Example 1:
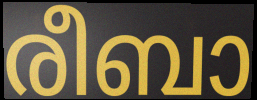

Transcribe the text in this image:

രീബാ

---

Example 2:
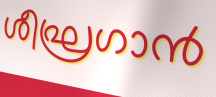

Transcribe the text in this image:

ശീഘ്രഗാൻ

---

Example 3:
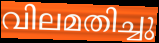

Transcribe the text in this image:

വിലമതിച്ചു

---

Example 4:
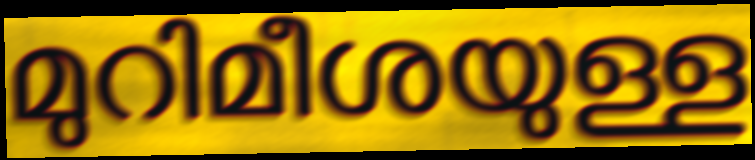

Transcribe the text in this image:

മുറിമീശയുള്ള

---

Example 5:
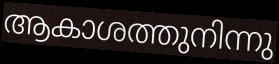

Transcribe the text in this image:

ആകാശത്തുനിന്നു